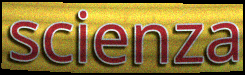
scienza